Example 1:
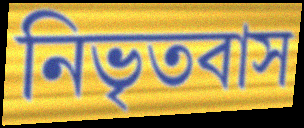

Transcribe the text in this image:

নিভৃতবাস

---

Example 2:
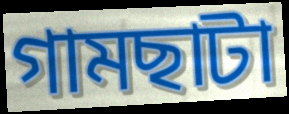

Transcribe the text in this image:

গামছাটা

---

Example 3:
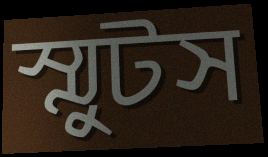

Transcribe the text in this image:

স্মুটস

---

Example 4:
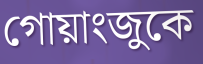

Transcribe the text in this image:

গোয়াংজুকে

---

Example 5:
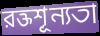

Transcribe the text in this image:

রক্তশূন্যতা